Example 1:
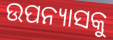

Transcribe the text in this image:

ଉପନ୍ୟାସକୁ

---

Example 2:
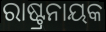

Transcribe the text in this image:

ରାଷ୍ଟ୍ରନାୟକ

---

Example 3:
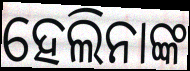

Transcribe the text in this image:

ହେଲିନାଙ୍କ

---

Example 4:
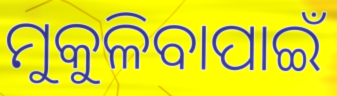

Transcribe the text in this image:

ମୁକୁଳିବାପାଇଁ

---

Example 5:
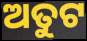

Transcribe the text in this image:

ଅତୁଟ